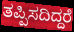
ತಪ್ಪಿಸದಿದ್ದರೆ